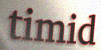
timid